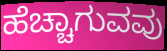
ಹೆಚ್ಚಾಗುವವು